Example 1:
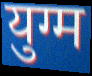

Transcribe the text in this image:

युग्म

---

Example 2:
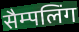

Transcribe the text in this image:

सैम्पलिंग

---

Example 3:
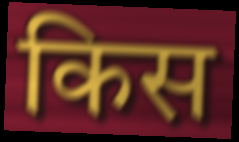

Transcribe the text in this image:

किस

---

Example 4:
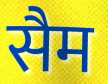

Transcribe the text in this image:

सैम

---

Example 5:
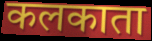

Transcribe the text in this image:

कलकाता